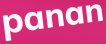
panan